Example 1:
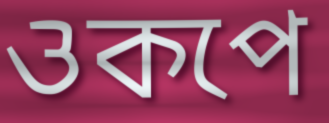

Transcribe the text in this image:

ওকপে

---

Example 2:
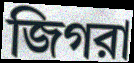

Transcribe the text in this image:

জিগরা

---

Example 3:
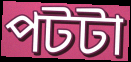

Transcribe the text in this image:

পটটা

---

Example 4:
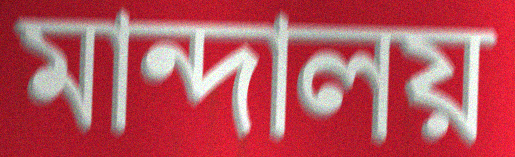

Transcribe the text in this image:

মান্দালয়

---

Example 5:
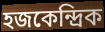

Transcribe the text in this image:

হজকেন্দ্রিক